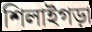
শিলাইগড়া